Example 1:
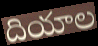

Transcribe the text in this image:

దియాల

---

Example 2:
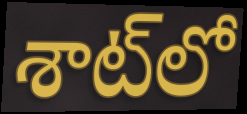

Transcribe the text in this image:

శాట్‌లో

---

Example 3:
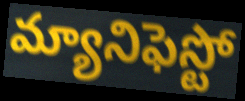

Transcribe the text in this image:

మ్యానిఫెస్టో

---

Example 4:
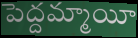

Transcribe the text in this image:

పెద్దమ్మాయీ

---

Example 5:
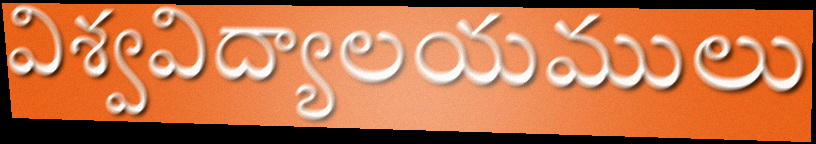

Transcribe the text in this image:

విశ్వవిద్యాలయములు